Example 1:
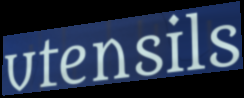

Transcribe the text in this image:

utensils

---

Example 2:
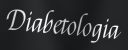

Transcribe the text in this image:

Diabetologia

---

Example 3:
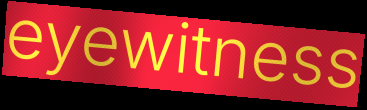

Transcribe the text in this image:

eyewitness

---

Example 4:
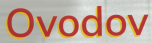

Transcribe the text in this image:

Ovodov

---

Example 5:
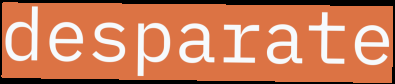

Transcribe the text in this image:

desparate